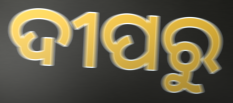
ଦୀପରୁ